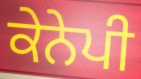
ਕੇਨੇਪੀ